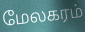
மேலகரம்